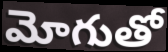
మోగుతో